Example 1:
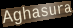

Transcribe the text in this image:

Aghasura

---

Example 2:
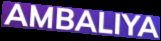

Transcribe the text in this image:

AMBALIYA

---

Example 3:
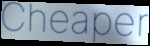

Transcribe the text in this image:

Cheaper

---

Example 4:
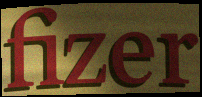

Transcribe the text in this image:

fizer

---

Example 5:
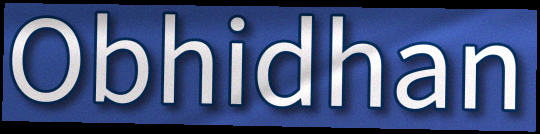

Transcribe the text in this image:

Obhidhan